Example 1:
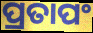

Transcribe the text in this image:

ପ୍ରତାପଂ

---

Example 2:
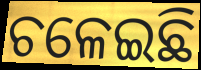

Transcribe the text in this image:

ଚଳେଇଛି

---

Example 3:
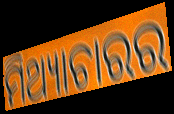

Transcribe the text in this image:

ମିଥ୍ୟାଚାରର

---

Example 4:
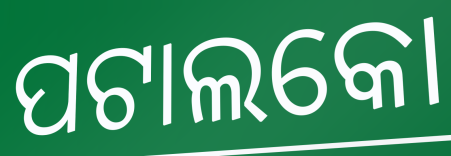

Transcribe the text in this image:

ପଟାଲକୋ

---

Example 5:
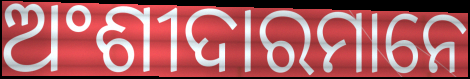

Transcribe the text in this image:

ଅଂଶୀଦାରମାନେ